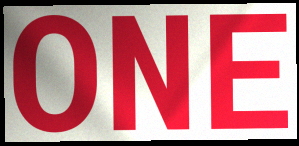
ONE